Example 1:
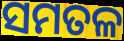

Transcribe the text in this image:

ସମତଳ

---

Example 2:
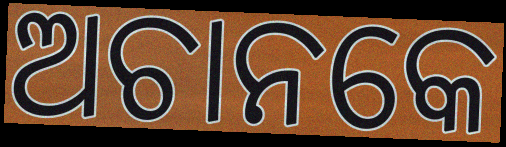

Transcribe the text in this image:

ଅଚାନକେ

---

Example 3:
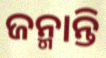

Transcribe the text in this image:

ଜନ୍ମାନ୍ତି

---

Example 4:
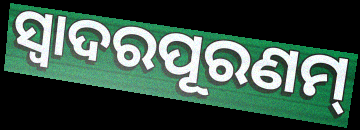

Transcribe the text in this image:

ସ୍ଵାଦରପୂରଣମ୍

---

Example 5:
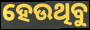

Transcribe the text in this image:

ହେଉଥିବୁ